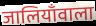
जालियाँवाला